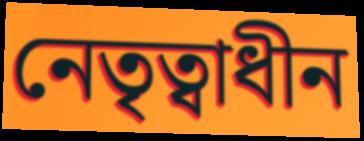
নেতৃত্বাধীন